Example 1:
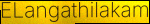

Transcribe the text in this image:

ELangathilakam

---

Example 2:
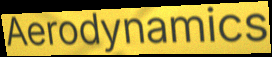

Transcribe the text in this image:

Aerodynamics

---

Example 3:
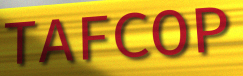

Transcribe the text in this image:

TAFCOP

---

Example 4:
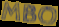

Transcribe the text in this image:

MBO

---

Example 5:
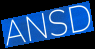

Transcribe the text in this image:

ANSD